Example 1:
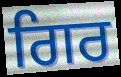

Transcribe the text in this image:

ਗਿਰ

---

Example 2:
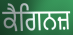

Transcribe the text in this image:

ਕੈਗਿਨਜ਼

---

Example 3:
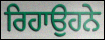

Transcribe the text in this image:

ਰਿਹਾਉਹਨੇ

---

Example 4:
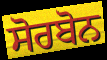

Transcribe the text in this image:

ਸੋਰਬੋਨ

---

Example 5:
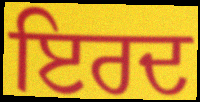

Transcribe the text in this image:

ਇਰਦ